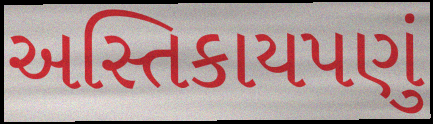
અસ્તિકાયપણું